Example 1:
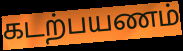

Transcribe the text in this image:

கடற்பயணம்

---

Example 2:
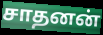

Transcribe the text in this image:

சாதனன்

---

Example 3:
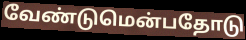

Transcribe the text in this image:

வேண்டுமென்பதோடு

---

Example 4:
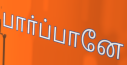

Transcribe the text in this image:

பார்ப்பானே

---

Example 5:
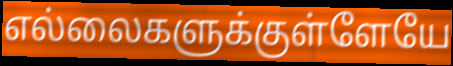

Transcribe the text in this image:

எல்லைகளுக்குள்ளேயே